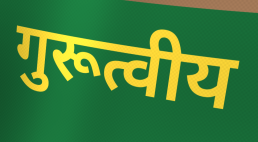
गुरूत्वीय